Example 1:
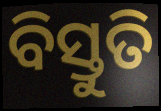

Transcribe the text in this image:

ବିସ୍ତୁତି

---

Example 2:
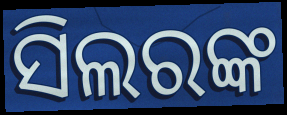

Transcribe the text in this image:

ସିଲରଙ୍କ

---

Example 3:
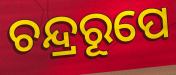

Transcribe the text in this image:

ଚନ୍ଦ୍ରରୂପେ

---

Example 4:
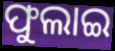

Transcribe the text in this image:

ଫୁଲାଇ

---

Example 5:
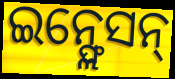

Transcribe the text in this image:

ଇନ୍ଫ୍ଲେସନ୍